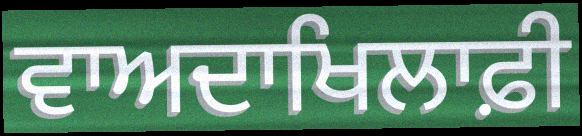
ਵਾਅਦਾਖਿਲਾਫ਼ੀ